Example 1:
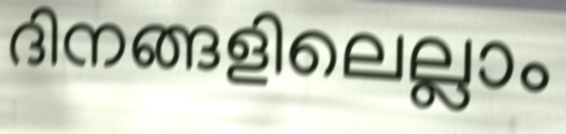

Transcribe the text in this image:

ദിനങ്ങളിലെല്ലാം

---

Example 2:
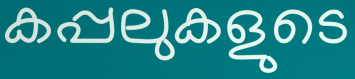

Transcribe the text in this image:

കപ്പലുകളുടെ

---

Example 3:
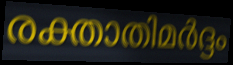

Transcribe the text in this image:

രക്താതിമർദ്ദം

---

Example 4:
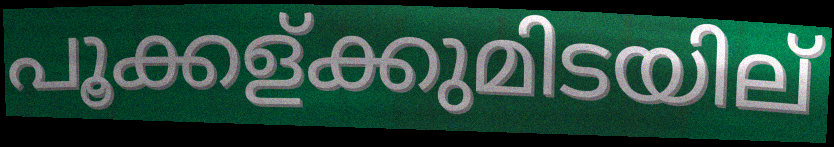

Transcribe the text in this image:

പൂക്കള്ക്കുമിടയില്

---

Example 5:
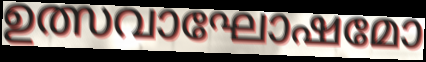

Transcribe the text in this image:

ഉത്സവാഘോഷമോ